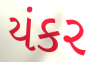
યંકર